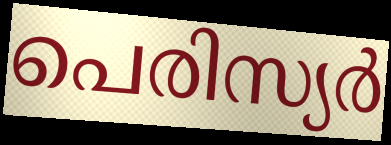
പെരിസ്യർ